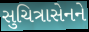
સુચિત્રાસેનને